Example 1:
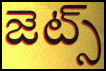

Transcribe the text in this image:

జెట్స్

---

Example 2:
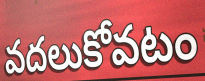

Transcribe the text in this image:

వదలుకోవటం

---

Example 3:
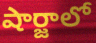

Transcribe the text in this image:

షార్జాలో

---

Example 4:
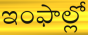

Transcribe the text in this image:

ఇంఫాల్లో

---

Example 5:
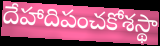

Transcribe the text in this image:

దేహాదిపంచకోశస్థా